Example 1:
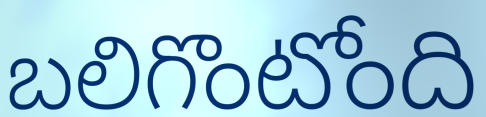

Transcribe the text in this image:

బలిగొంటోంది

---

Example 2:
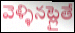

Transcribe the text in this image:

వెళ్ళినట్లైతే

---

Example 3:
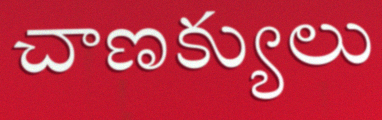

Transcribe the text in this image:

చాణక్యులు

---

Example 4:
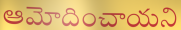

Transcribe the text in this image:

ఆమోదించాయని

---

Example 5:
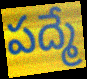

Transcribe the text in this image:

పద్మే